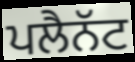
ਪਲੈਨੱਟ